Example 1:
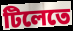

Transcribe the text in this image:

টিলেতে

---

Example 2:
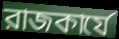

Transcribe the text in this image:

রাজকার্যে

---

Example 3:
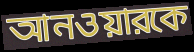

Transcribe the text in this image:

আনওয়ারকে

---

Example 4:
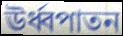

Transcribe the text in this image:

ঊর্ধ্বপাতন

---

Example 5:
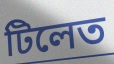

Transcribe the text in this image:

টিলেত